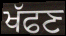
ਖੱਫਣ